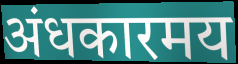
अंधकारमय